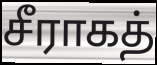
சீராகத்